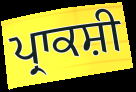
ਪ੍ਰਾਕਸ਼ੀ